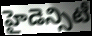
హైడెన్సిటీ